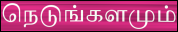
நெடுங்களமும்